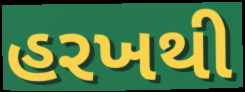
હરખથી